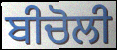
ਬੀਚੋਲੀ